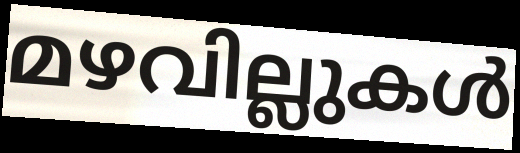
മഴവില്ലുകൾ